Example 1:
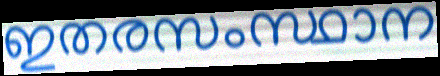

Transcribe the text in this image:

ഇതരസംസ്ഥാന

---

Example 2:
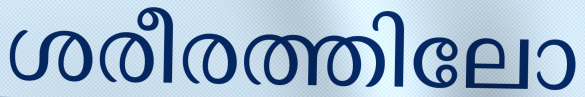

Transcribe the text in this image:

ശരീരത്തിലോ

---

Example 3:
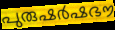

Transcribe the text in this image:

പുരുഷർഷഭൗ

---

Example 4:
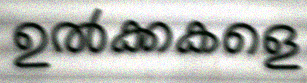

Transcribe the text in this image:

ഉൽക്കകളെ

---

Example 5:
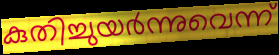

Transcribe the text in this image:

കുതിച്ചുയർന്നുവെന്ന്